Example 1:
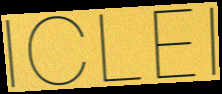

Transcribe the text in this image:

ICLEI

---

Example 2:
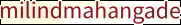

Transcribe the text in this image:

milindmahangade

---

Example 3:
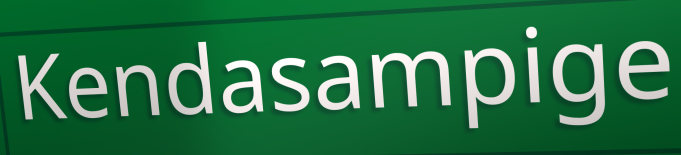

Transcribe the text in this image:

Kendasampige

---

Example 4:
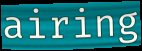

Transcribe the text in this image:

airing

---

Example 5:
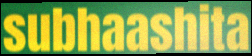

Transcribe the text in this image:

subhaashita